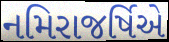
નમિરાજર્ષિએ